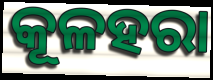
କୂଳହରା